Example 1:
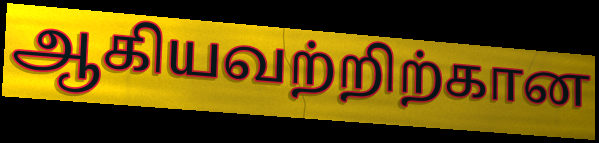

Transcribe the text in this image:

ஆகியவற்றிற்கான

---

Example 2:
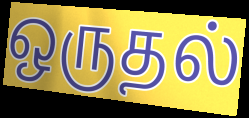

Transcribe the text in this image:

ஒருதல்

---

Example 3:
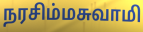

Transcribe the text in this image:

நரசிம்மசுவாமி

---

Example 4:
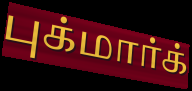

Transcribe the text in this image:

புக்மார்க்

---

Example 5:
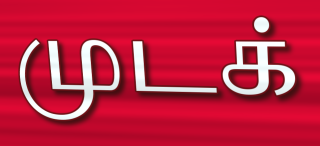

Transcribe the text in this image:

முடக்